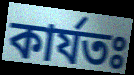
কাৰ্যতঃ